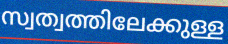
സ്വത്വത്തിലേക്കുള്ള